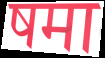
षमा